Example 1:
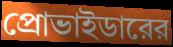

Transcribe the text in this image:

প্রোভাইডারের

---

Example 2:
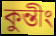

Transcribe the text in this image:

কুন্তীং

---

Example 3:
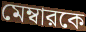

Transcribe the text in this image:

মেম্বারকে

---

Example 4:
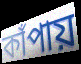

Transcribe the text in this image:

কাঁপায়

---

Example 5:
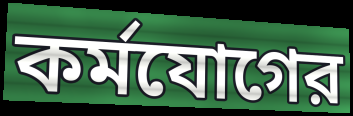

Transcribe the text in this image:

কর্মযোগের